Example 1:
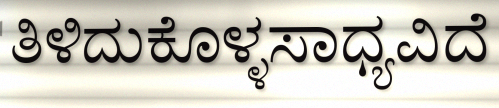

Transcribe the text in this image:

ತಿಳಿದುಕೊಳ್ಳಸಾಧ್ಯವಿದೆ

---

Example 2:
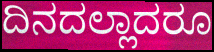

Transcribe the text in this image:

ದಿನದಲ್ಲಾದರೂ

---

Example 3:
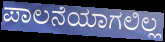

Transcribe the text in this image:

ಪಾಲನೆಯಾಗಲಿಲ್ಲ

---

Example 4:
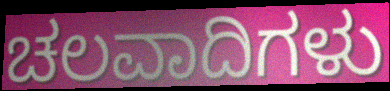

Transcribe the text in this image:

ಚಲವಾದಿಗಳು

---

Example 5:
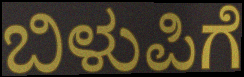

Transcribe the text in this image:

ಬಿಳುಪಿಗೆ